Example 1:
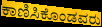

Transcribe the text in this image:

ಕಾಣಿಸಿಕೊಂಡವರು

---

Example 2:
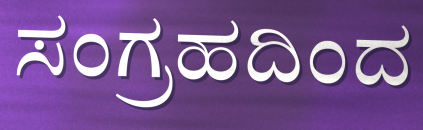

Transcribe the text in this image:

ಸಂಗ್ರಹದಿಂದ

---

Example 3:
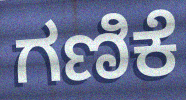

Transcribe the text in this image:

ಗಣಿಕೆ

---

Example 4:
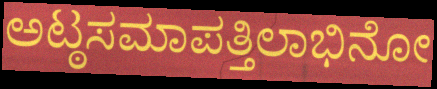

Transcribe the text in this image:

ಅಟ್ಠಸಮಾಪತ್ತಿಲಾಭಿನೋ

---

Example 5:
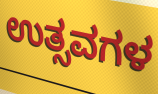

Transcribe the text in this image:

ಉತ್ಸವಗಳ